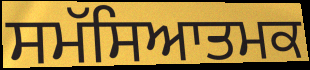
ਸਮੱਸਿਆਤਮਕ